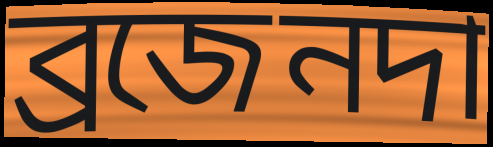
ব্রজেনদা